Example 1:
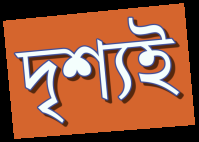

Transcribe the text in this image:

দৃশ্যই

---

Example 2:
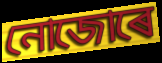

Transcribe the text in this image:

নোজোৰে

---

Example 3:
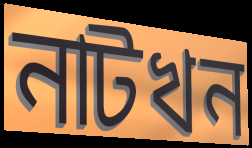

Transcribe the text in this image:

নাটখন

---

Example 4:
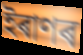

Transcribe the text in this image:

ইৰাণৰ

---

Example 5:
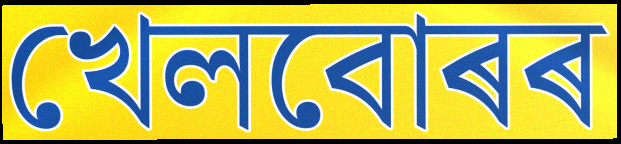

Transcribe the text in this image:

খেলবোৰৰ